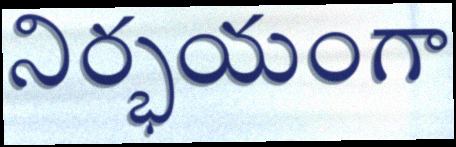
నిర్భయంగా